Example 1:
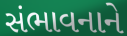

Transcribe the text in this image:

સંભાવનાને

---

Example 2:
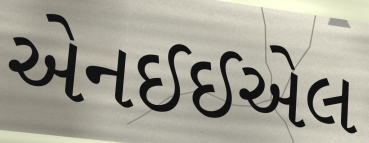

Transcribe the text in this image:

એનઈઈએલ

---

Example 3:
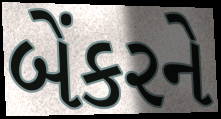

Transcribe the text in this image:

બેંકરને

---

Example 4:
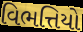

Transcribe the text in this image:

વિભત્તિયો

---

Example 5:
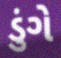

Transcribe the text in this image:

ડુંગે